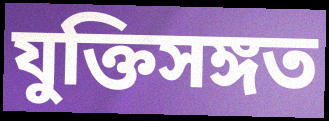
যুক্তিসঙ্গত